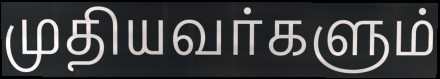
முதியவர்களும்